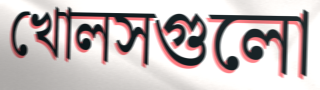
খোলসগুলো